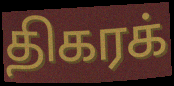
திகரக்